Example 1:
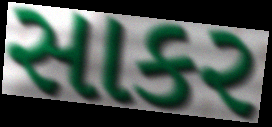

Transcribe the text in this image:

સાકર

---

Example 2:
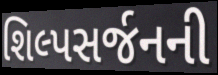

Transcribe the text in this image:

શિલ્પસર્જનની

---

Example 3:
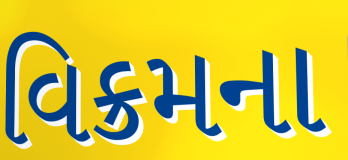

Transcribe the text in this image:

વિક્રમના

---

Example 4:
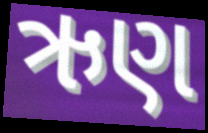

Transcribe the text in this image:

ઋણ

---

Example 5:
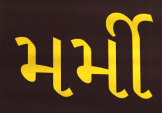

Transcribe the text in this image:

મર્મી